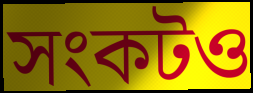
সংকটও